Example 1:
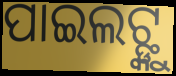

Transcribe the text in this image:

ପାଇଲଟ୍ଙ୍କୁ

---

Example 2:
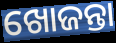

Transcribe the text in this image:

ଖୋଜନ୍ତା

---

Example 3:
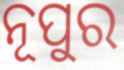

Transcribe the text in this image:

ନୂପୁର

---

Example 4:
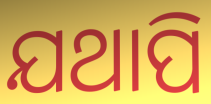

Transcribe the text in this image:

ଯଥାପି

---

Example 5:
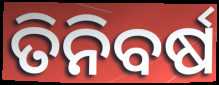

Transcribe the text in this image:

ତିନିବର୍ଷ